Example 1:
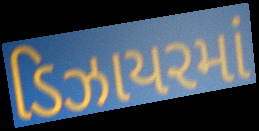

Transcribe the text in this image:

ડિઝાયરમાં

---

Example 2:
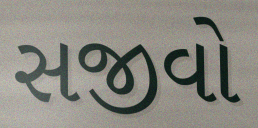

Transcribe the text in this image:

સજીવો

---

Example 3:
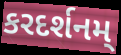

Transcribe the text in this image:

કરદર્શનમ્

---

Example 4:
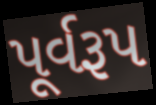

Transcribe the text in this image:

પૂર્વરૂપ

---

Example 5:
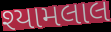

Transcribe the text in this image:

શ્યામલાલ